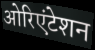
ओरिएंटेशन